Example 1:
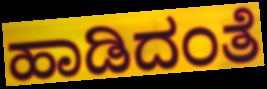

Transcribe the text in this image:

ಹಾಡಿದಂತೆ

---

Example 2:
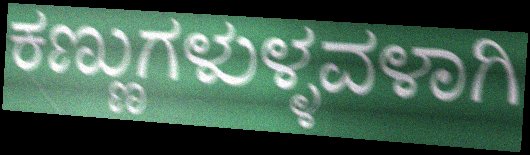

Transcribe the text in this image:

ಕಣ್ಣುಗಳುಳ್ಳವಳಾಗಿ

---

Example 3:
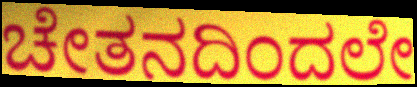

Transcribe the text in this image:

ಚೇತನದಿಂದಲೇ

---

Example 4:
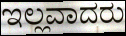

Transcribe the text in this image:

ಇಲ್ಲವಾದರು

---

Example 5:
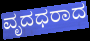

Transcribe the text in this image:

ವೃದಧರಾದ